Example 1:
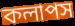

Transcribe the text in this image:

কলাপস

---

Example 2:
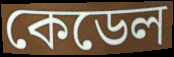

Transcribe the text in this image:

কেডেল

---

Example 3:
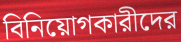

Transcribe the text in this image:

বিনিয়োগকারীদের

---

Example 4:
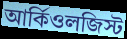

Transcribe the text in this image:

আর্কিওলজিস্ট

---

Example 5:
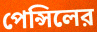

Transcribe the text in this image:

পেন্সিলের